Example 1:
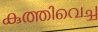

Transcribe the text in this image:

കുത്തിവെച്ച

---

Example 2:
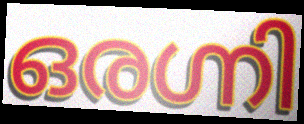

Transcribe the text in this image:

ഒരഗ്നി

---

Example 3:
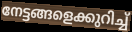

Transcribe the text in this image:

നേട്ടങ്ങളെക്കുറിച്ച്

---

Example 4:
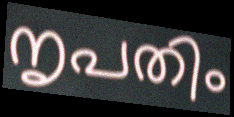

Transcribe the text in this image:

നൃപതിം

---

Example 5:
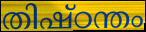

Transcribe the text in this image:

തിഷ്ഠന്തം